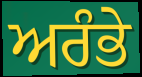
ਅਰੰਭੇ